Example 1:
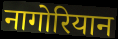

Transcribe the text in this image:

नागोरियान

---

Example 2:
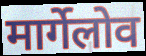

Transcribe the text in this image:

मार्गेलोव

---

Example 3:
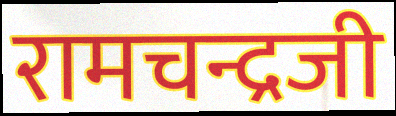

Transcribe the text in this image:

रामचन्द्रजी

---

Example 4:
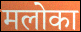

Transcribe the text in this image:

मलोका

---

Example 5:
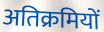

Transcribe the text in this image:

अतिक्रमियों